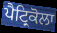
ਪੈਟ੍ਰਿਕੋਲਾ